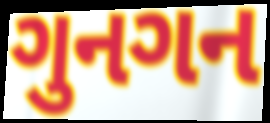
ગુનગન